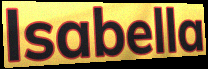
Isabella